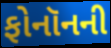
ફોનૉનની